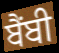
ਬੈਂਬੀ